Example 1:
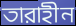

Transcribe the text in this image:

তারাহীন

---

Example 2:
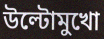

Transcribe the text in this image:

উল্টোমুখো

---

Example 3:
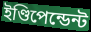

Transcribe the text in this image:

ইণ্ডিপেন্ডেন্ট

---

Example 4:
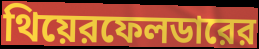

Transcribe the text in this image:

থিয়েরফেলডারের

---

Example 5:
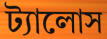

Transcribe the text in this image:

ট্যালোস